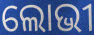
ଲୋଭୀ